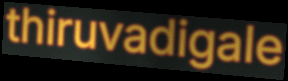
thiruvadigale